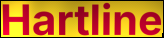
Hartline